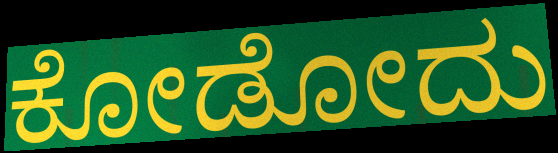
ಕೋಡೋದು